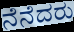
ನೆನೆದರು